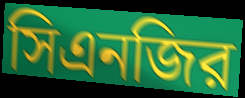
সিএনজির